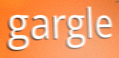
gargle